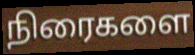
நிரைகளை